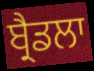
ਬ੍ਰੈਡਲਾ